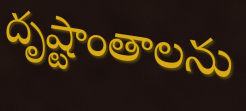
దృష్టాంతాలను